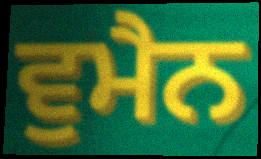
ਵੁਮੈਨ